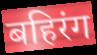
बहिरंग